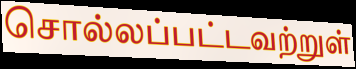
சொல்லப்பட்டவற்றுள்